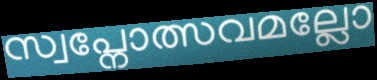
സ്വപ്നോത്സവമല്ലോ